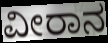
ವೀರಾನ